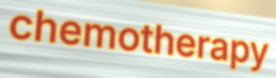
chemotherapy